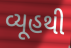
વ્યૂહથી